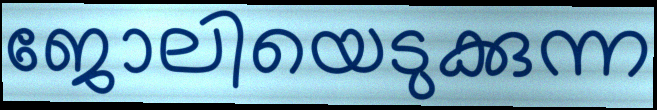
ജോലിയെടുക്കുന്ന